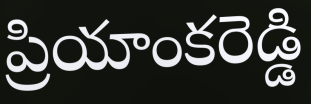
ప్రియాంకరెడ్డి